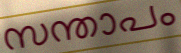
സന്താപം